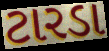
ટારડા